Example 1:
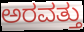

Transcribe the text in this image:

ಅರವತ್ತು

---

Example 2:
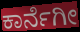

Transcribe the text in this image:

ಕಾರ್ನೆಗೀ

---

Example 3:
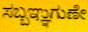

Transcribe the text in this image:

ಸಬ್ಬಞ್ಞುಗುಣೇ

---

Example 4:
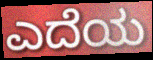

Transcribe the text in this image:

ಎದೆಯ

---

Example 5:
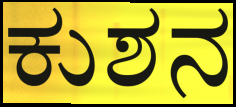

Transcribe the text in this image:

ಕುಶನ